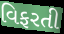
વિફરતી